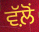
ਵੱਲ਼ੋਂ